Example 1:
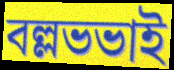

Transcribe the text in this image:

বল্লভভাই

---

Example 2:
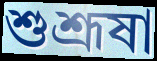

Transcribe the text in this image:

শুশ্রূষা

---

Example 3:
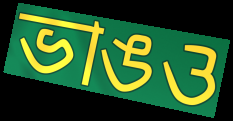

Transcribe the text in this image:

ভাঙও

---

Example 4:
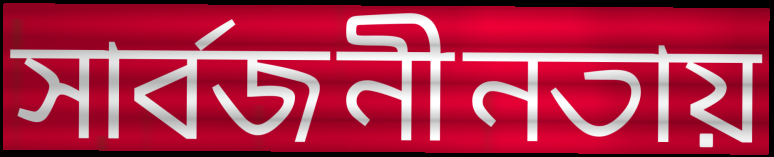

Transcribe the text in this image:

সার্বজনীনতায়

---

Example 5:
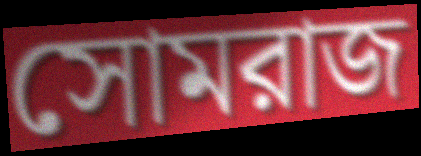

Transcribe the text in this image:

সোমরাজ